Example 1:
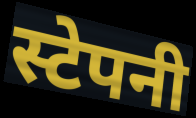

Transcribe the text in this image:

स्टेपनी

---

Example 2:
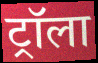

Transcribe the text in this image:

ट्रॉला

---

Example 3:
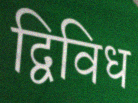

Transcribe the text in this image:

द्विविध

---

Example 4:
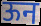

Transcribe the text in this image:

ऊन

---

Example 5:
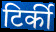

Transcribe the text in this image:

टिर्की